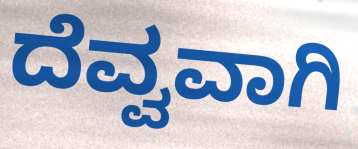
ದೆವ್ವವಾಗಿ